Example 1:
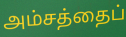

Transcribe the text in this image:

அம்சத்தைப்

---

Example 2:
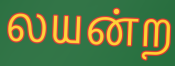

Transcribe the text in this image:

லயன்ற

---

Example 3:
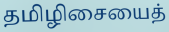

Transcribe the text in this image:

தமிழிசையைத்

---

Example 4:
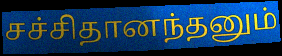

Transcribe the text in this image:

சச்சிதானந்தனும்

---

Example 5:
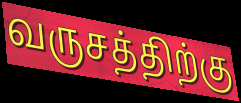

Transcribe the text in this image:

வருசத்திற்கு